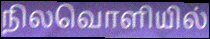
நிலவொளியில்